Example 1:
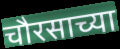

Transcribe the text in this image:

चौरसाच्या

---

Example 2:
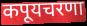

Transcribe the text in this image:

कपूयचरणा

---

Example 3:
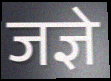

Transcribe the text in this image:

जज्ञे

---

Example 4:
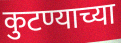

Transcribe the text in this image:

कुटण्याच्या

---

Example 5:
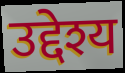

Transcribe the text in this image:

उद्देश्य